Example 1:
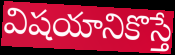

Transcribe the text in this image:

విషయానికొస్తే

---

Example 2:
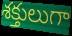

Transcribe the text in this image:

శక్తులుగా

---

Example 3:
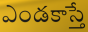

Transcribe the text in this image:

ఎండకాస్తే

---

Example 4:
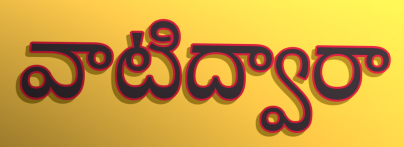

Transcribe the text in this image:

వాటిద్వారా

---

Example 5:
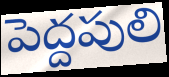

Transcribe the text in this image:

పెద్దపులి